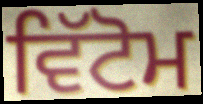
ਵਿੱਟੋਮ